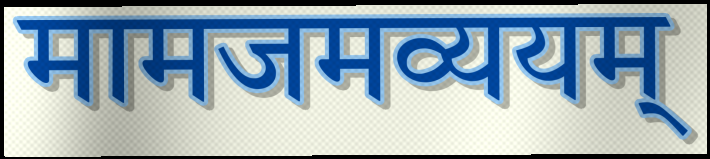
मामजमव्ययम्